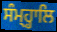
ਸੰਮ੍ਹ੍ਹਾਲਿ